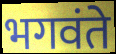
भगवंते